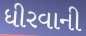
ધીરવાની